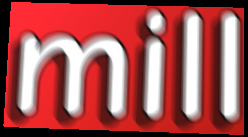
mill